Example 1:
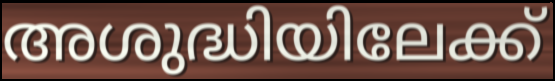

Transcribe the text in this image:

അശുദ്ധിയിലേക്ക്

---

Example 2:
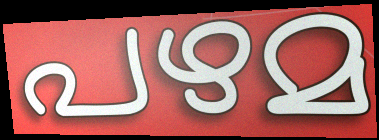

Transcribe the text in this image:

പഴമ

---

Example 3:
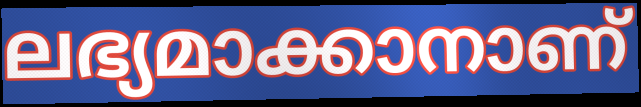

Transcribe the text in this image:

ലഭ്യമാക്കാനാണ്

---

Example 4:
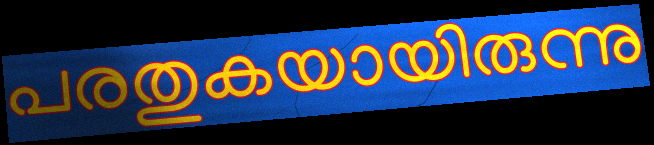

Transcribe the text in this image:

പരതുകയായിരുന്നു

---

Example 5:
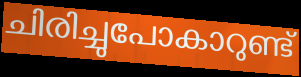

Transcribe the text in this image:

ചിരിച്ചുപോകാറുണ്ട്